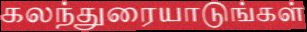
கலந்துரையாடுங்கள்